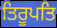
ਤਿਰੂਪਤਿ